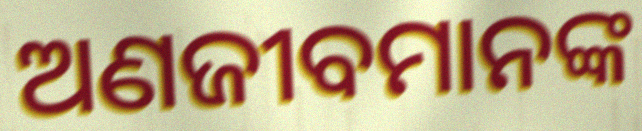
ଅଣଜୀବମାନଙ୍କ